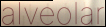
alveolar